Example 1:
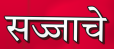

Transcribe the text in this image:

सज्जाचे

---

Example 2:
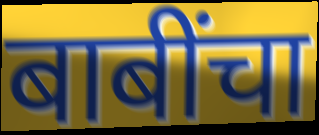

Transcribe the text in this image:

बाबींचा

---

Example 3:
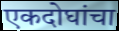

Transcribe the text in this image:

एकदोघांचा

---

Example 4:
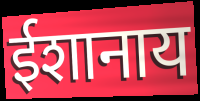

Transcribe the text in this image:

ईशानाय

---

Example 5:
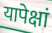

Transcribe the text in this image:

यापेक्षां